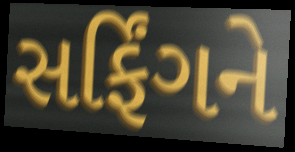
સર્ફિંગને